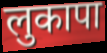
लुकापा